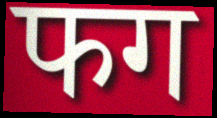
फग